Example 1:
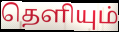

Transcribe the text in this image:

தெளியும்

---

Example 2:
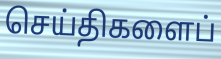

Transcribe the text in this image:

செய்திகளைப்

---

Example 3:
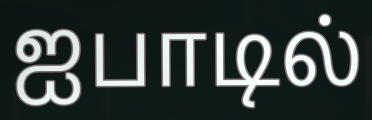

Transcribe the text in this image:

ஐபாடில்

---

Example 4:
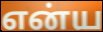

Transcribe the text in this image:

என்ய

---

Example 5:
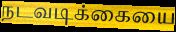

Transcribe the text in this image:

நடவடிக்கையை